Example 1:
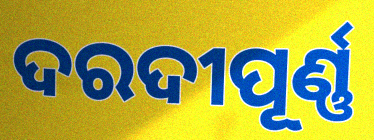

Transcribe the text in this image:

ଦରଦୀପୂର୍ଣ୍ଣ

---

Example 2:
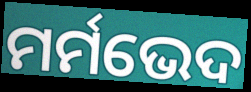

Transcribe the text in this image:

ମର୍ମଭେଦ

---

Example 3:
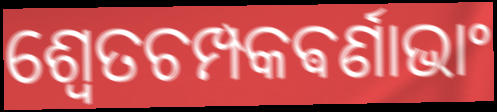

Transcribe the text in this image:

ଶ୍ଵେତଚମ୍ପକଵର୍ଣାଭାଂ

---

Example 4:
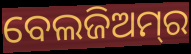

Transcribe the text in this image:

ବେଲଜିଅମ୍‌ର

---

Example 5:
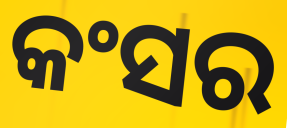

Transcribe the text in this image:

କଂସର